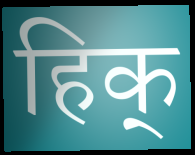
हिक्